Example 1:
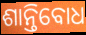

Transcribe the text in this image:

ଶାନ୍ତିବୋଧ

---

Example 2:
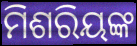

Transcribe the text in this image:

ମିଶରିୟଙ୍କ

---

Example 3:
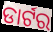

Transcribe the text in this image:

ଡାର୍ଟର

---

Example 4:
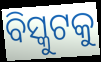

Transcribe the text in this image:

ବିସ୍କୁଟକୁ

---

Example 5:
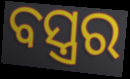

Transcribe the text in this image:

ବସ୍ତ୍ରର